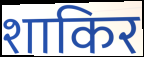
शाकिर